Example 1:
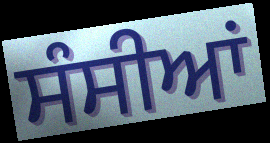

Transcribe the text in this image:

ਸੰਸੀਆਂ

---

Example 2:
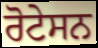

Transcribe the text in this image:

ਰੋਟੇਸਨ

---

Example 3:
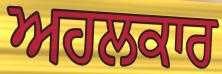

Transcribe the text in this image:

ਅਹਲਕਾਰ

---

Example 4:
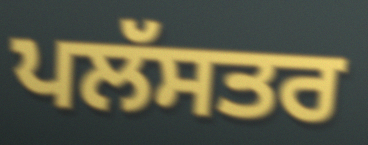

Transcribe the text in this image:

ਪਲੱਸਤਰ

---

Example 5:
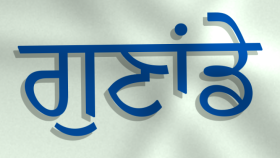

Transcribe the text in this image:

ਗੁਣਾਂਡੇ